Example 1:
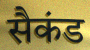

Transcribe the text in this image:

सैकंड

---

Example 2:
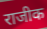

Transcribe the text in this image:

राजीक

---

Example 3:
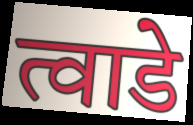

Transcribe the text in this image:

त्वाडे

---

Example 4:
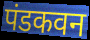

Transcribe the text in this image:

पंडकवन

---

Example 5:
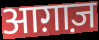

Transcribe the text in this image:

आग़ाज़